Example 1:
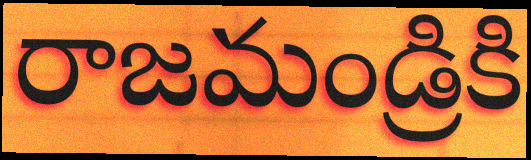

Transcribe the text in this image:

రాజమండ్రికి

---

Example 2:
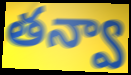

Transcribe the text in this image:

తన్వా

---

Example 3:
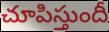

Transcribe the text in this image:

చూపిస్తుందీ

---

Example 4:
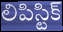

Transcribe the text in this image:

లిపిస్టిక్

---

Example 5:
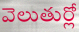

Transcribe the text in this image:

వెలుతుర్లో